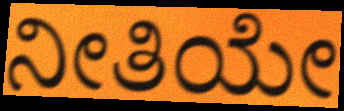
ನೀತಿಯೇ